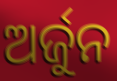
ଅର୍ଜୁନ